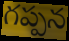
గప్పన